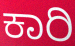
ಕಾರಿ